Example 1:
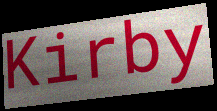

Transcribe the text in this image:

Kirby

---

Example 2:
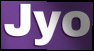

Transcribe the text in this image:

Jyo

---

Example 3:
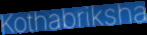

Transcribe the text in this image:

Kothabriksha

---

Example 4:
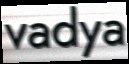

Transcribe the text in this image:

vadya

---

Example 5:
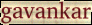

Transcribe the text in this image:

gavankar